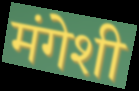
मंगेशी